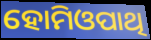
ହୋମିଓପାଥି